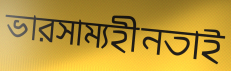
ভারসাম্যহীনতাই